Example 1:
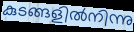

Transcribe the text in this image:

കുടങ്ങളിൽനിന്നു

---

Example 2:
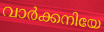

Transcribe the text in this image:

വാർക്കനിയേ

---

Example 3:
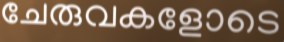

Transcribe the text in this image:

ചേരുവകളോടെ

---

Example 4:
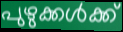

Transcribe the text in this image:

പുഴുക്കൾക്ക്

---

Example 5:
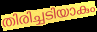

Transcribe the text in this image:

തിരിച്ചടിയാകും